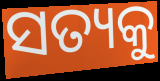
ସତ୍ୟକୁ